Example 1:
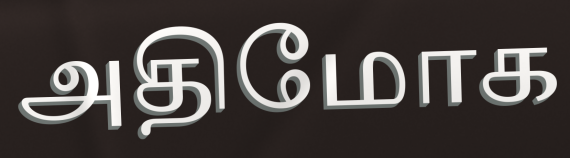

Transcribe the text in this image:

அதிமோக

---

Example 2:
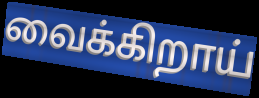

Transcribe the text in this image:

வைக்கிறாய்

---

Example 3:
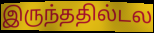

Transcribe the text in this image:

இருந்ததில்டல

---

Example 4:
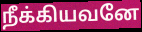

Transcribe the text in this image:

நீக்கியவனே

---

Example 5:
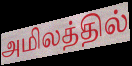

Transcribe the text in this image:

அமிலத்தில்